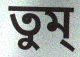
তুম্